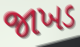
જાખડ